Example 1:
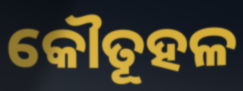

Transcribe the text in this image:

କୌତୂହଳ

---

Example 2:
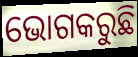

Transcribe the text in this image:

ଭୋଗକରୁଛି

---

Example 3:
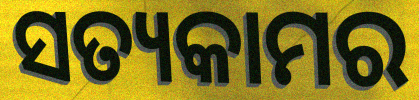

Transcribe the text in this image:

ସତ୍ୟକାମର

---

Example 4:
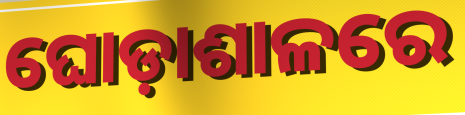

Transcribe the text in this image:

ଘୋଡ଼ାଶାଳରେ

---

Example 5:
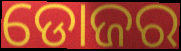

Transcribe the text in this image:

ଡୋଜର